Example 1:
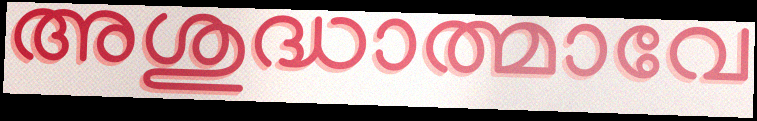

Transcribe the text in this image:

അശുദ്ധാത്മാവേ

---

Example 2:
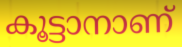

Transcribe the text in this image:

കൂട്ടാനാണ്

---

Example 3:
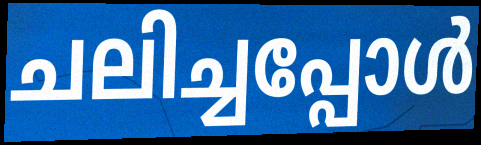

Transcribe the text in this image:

ചലിച്ചപ്പോൾ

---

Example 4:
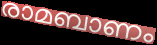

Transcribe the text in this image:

രാമബാണം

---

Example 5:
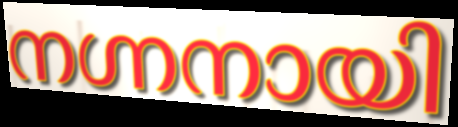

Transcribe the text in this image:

നഗ്നനായി